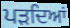
ਪੜਦਿਆਂ